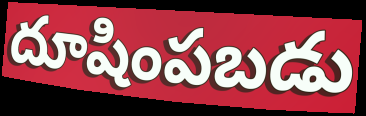
దూషింపబడు